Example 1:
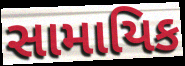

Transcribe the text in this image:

સામાયિક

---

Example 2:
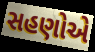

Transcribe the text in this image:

સહણોએ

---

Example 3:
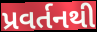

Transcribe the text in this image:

પ્રવર્તનથી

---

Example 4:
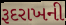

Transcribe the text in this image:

રૂદરાખની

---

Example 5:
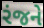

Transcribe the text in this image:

રંજને